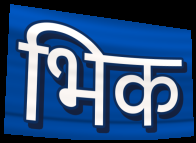
भिक